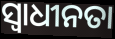
ସ୍ବାଧୀନତା